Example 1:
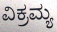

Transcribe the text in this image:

ವಿಕ್ರಮ್ಯ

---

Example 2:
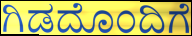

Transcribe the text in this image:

ಗಿಡದೊಂದಿಗೆ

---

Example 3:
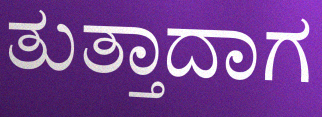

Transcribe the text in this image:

ತುತ್ತಾದಾಗ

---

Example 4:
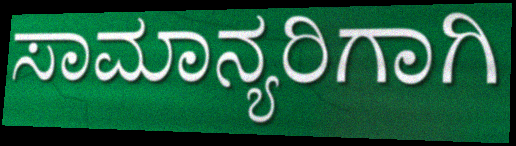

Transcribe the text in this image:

ಸಾಮಾನ್ಯರಿಗಾಗಿ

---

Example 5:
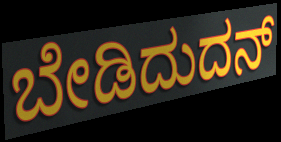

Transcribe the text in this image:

ಬೇಡಿದುದನ್